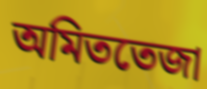
অমিততেজা